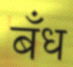
बँध